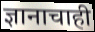
ज्ञानाचाही